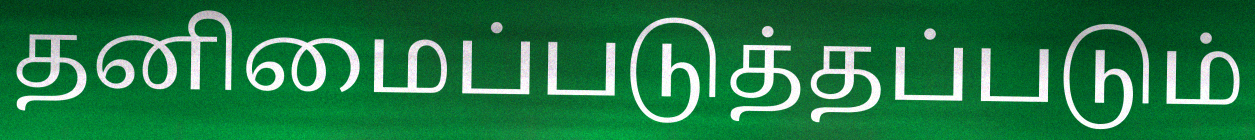
தனிமைப்படுத்தப்படும்